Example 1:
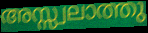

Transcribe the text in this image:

അസ്സ്വലാത്തു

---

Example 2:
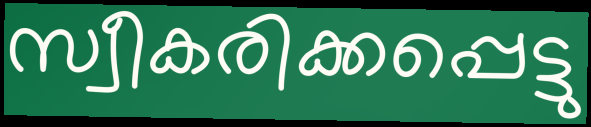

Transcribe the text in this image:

സ്വീകരിക്കപ്പെട്ടു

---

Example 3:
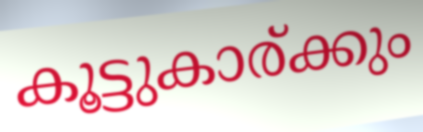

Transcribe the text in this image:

കൂട്ടുകാര്ക്കും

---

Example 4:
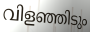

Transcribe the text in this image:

വിളഞ്ഞിടും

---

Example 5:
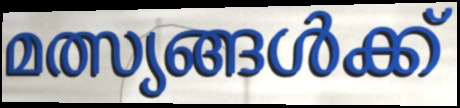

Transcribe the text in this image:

മത്സ്യങ്ങൾക്ക്